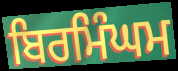
ਬਿਰਮਿੰਘਮ